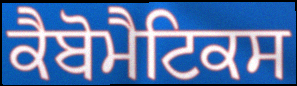
ਕੈਬੋਮੈਟਿਕਸ